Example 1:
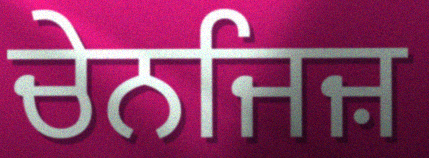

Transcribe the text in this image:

ਚੇਨਜਿਜ਼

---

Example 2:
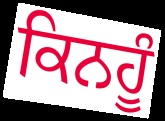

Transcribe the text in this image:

ਕਿਨਹੂੰ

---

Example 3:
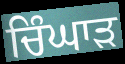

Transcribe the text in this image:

ਚਿੰਘਾੜ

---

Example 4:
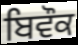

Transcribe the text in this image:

ਬਿਵੌਕ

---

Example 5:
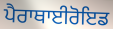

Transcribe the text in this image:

ਪੈਰਾਥਾਈਰੋਇਡ